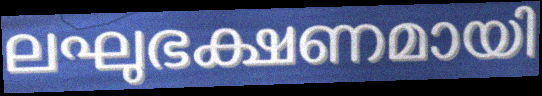
ലഘുഭക്ഷണമായി